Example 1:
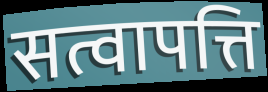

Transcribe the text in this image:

सत्वापत्ति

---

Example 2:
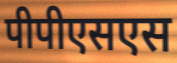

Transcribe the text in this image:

पीपीएसएस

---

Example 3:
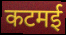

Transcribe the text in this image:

कटमई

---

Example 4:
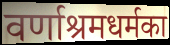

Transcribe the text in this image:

वर्णाश्रमधर्मका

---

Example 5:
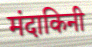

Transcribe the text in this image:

मंदाकिनी